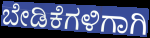
ಬೇಡಿಕೆಗಳಿಗಾಗಿ